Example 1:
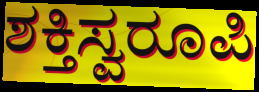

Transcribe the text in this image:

ಶಕ್ತಿಸ್ವರೂಪಿ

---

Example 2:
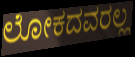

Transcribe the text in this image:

ಲೋಕದವರಲ್ಲ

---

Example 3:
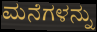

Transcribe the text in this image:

ಮನೆಗಳನ್ನು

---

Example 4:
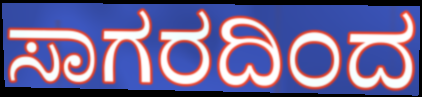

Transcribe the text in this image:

ಸಾಗರದಿಂದ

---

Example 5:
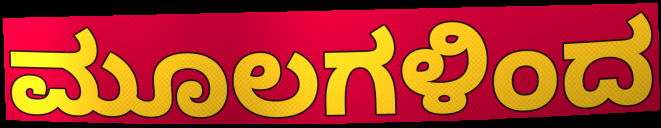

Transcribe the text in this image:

ಮೂಲಗಳಿಂದ